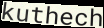
kuthech